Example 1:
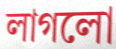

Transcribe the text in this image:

লাগলো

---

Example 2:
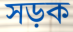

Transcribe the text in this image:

সড়ক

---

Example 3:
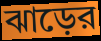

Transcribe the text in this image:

ঝাড়ের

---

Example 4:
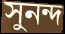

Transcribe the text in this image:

সুনন্দ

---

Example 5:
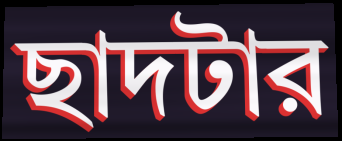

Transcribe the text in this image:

ছাদটার